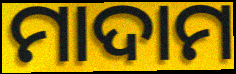
ମାଦାମ